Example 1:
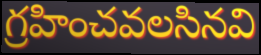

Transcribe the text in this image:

గ్రహించవలసినవి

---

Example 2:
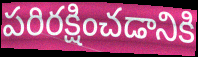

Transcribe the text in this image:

పరిరక్షించడానికి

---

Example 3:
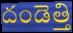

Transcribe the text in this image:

దండెత్తి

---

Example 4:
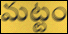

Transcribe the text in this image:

మట్టం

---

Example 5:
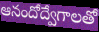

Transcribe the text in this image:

ఆనందోద్వేగాలతో